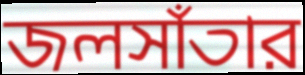
জলসাঁতার